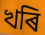
খৰি